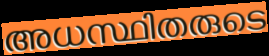
അധസ്ഥിതരുടെ